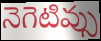
నెగెటివ్సు